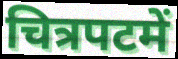
चित्रपटमें